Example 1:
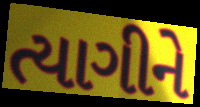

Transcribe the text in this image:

ત્યાગીને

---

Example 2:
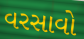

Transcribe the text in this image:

વરસાવો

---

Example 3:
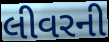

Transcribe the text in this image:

લીવરની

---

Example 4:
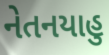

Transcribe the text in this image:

નેતનયાહુ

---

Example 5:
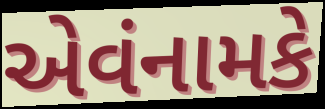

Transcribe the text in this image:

એવંનામકે